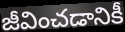
జీవించడానికీ